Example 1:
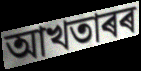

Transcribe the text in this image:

আখতাৰৰ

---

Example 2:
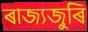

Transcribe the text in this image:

ৰাজ্যজুৰি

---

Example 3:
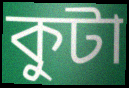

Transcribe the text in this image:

কুটা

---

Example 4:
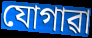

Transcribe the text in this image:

যোগাৱা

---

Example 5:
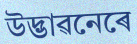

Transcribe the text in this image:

উদ্ভাৱনেৰে